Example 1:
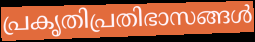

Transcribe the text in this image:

പ്രകൃതിപ്രതിഭാസങ്ങൾ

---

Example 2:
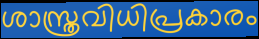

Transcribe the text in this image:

ശാസ്ത്രവിധിപ്രകാരം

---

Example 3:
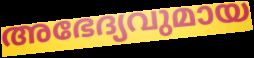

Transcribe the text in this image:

അഭേദ്യവുമായ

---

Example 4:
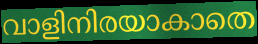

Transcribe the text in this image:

വാളിനിരയാകാതെ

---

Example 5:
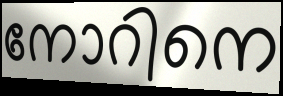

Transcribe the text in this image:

നോറിനെ